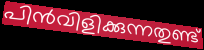
പിൻവിളിക്കുന്നതുണ്ട്